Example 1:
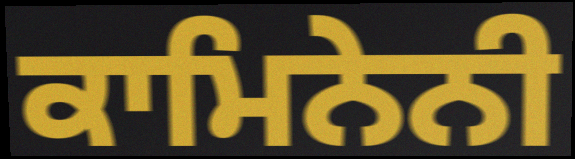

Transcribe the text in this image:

ਕਾਮਿਨੇਨੀ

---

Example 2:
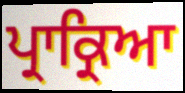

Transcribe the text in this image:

ਪ੍ਰਾਕ੍ਰਿਆ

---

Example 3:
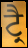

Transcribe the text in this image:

ਟ੍ਰੈ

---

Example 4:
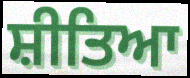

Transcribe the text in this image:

ਸ਼ੀਤਿਆ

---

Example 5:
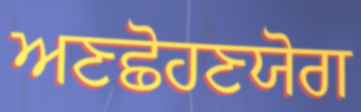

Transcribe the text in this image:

ਅਣਛੋਹਣਯੋਗ